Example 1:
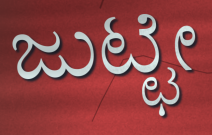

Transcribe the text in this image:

ಜುಟ್ಟೇ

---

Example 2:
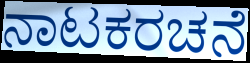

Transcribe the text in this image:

ನಾಟಕರಚನೆ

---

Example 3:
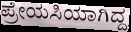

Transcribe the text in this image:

ಪ್ರೇಯಸಿಯಾಗಿದ್ದ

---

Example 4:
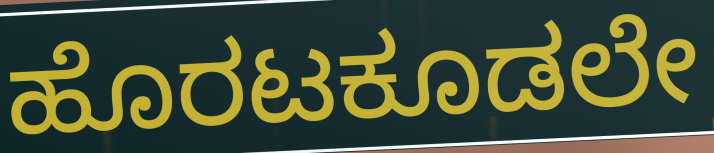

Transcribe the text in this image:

ಹೊರಟಕೂಡಲೇ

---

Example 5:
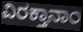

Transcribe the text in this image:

ವಿರಕ್ತಾನಾಂ